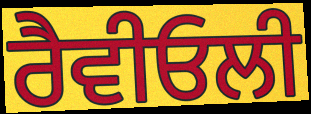
ਰੈਵੀਓਲੀ